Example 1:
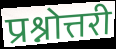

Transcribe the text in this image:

प्रश्नोत्तरी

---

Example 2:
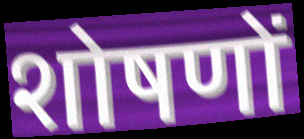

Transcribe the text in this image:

शोषणों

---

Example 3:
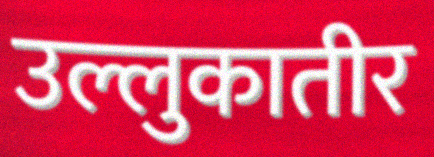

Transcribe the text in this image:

उल्लुकातीर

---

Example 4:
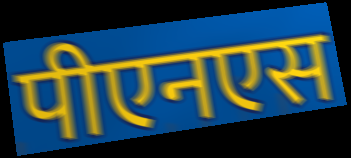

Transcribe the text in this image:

पीएनएस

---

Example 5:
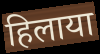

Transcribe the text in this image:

हिलाया